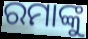
ରମାଙ୍କୁ